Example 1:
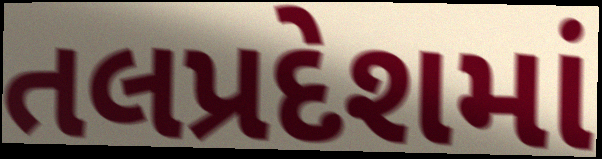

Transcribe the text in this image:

તલપ્રદેશમાં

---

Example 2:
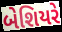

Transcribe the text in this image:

બેશિયરે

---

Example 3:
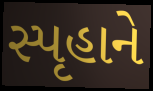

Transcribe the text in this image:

સ્પૃહાને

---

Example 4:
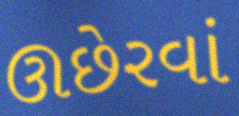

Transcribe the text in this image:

ઊછેરવાં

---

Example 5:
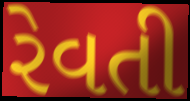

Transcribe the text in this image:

રેવતી